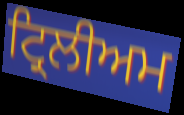
ਟ੍ਰਿਲੀਅਮ